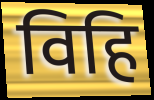
विहि